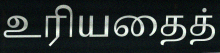
உரியதைத்